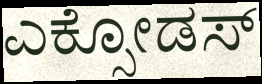
ಎಕ್ಸೋಡಸ್